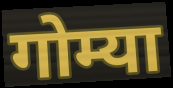
गोम्या